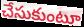
చేసుకుంటూ